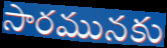
సారమునకు